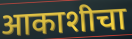
आकाशीचा